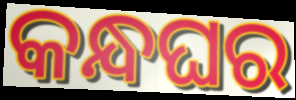
କନ୍ଧଘର